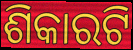
ଶିକାରଟି